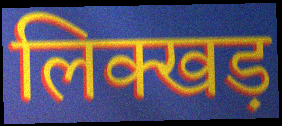
लिक्खड़